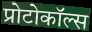
प्रोटोकॉल्स